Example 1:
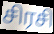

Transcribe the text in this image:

சிரசி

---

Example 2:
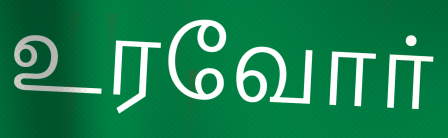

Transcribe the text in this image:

உரவோர்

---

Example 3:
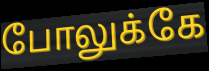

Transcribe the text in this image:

போலுக்கே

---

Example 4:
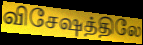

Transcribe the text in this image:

விசேஷத்திலே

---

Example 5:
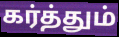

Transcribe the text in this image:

கர்த்தும்